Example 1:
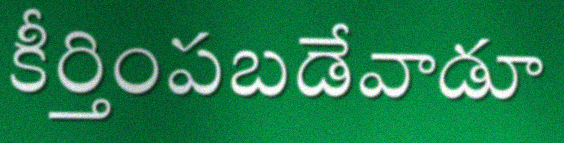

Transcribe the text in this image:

కీర్తింపబడేవాడూ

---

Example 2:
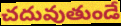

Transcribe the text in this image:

చదువుతుండే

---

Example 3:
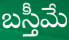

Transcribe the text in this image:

బస్తీమే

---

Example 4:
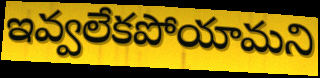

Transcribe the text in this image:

ఇవ్వలేకపోయామని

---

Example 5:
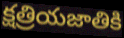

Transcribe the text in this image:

క్షత్రియజాతికి